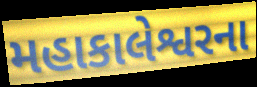
મહાકાલેશ્વરના